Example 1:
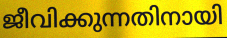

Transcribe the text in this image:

ജീവിക്കുന്നതിനായി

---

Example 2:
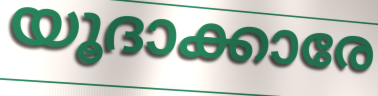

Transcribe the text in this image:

യൂദാക്കാരേ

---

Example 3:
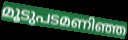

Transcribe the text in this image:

മൂടുപടമണിഞ്ഞ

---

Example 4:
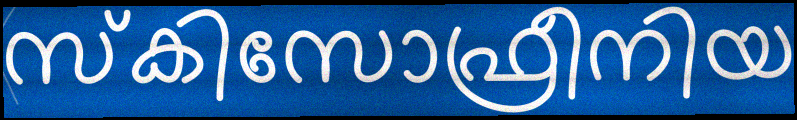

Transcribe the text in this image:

സ്കിസോഫ്രീനിയ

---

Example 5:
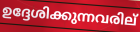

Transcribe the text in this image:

ഉദ്ദേശിക്കുന്നവരില്